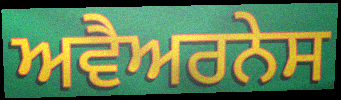
ਅਵੈਅਰਨੇਸ